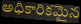
అధికారికమైన